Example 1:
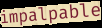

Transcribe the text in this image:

impalpable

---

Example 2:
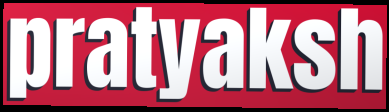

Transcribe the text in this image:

pratyaksh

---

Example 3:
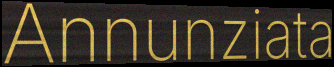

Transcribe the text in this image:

Annunziata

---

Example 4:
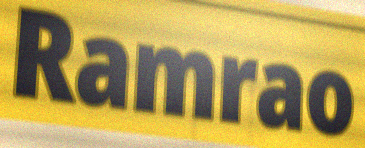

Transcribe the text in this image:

Ramrao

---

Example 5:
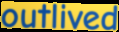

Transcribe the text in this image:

outlived